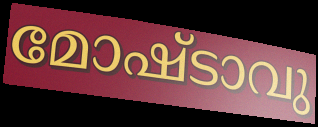
മോഷ്ടാവു